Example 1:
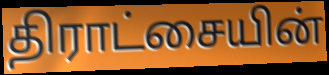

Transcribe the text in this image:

திராட்சையின்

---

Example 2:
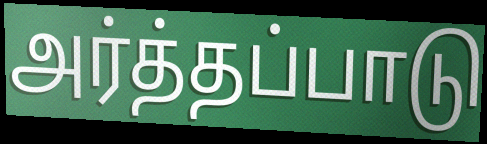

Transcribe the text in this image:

அர்த்தப்பாடு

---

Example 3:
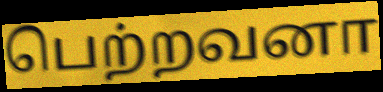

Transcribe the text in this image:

பெற்றவனா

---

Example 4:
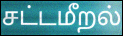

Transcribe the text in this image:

சட்டமீறல்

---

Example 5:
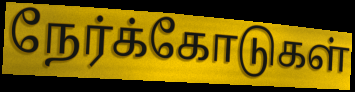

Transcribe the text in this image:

நேர்க்கோடுகள்